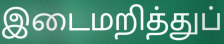
இடைமறித்துப்